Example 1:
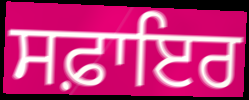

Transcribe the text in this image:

ਸਫ਼ਾਇਰ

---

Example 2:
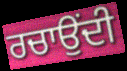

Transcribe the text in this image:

ਰਚਾਉਂਦੀ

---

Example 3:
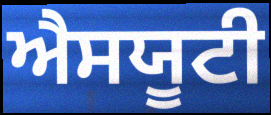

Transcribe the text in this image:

ਐਸਯੂਟੀ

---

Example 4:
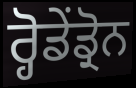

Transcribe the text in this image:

ਰ੍ਹੋਡੇਂਡ੍ਰੋਨ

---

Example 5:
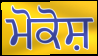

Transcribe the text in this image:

ਮੋਕੋਸ਼